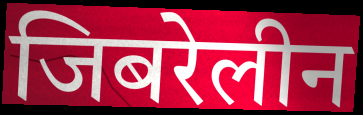
जिबरेलीन